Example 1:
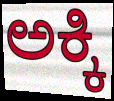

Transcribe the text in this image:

ಅಕ್ಕಿ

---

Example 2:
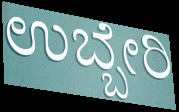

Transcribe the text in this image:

ಉಬ್ಬೇರಿ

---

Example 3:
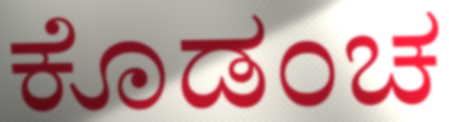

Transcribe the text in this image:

ಕೊಡಂಚ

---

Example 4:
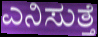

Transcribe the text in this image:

ಎನಿಸುತ್ತೆ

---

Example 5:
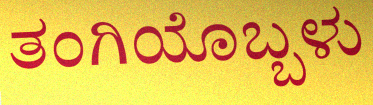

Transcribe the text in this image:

ತಂಗಿಯೊಬ್ಬಳು